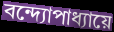
বন্দ্যোপাধ্যায়ে